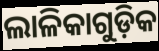
ଲାଳିକାଗୁଡ଼ିକ